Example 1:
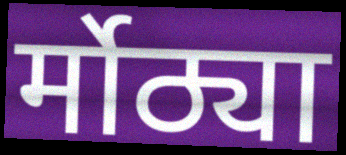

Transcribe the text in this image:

र्मोठ्या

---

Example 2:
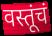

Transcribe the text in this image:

वस्तूंचं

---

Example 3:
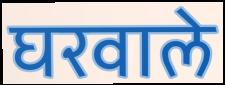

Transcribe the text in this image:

घरवाले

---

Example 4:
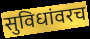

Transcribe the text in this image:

सुविधांवरच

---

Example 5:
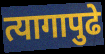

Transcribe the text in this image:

त्यागापुढे